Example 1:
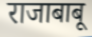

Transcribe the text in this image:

राजाबाबू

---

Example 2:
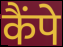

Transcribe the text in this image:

कैंपे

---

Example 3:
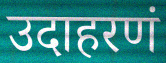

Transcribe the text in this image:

उदाहरणं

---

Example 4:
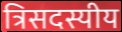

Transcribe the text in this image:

त्रिसदस्यीय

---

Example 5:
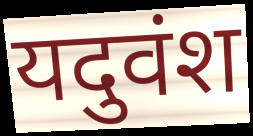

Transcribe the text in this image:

यदुवंश